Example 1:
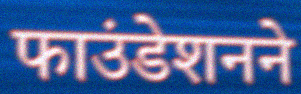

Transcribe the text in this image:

फाउंडेशनने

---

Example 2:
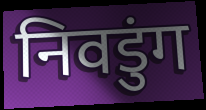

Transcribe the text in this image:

निवडुंग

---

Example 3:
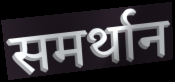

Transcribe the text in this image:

समर्थान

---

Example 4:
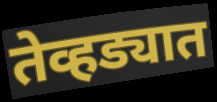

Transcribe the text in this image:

तेव्हड्यात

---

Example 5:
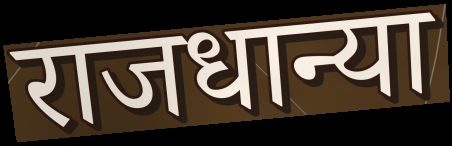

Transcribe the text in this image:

राजधान्या